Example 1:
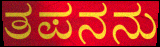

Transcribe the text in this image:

ತಪನನು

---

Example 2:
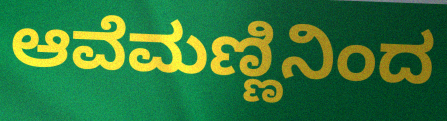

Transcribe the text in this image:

ಆವೆಮಣ್ಣಿನಿಂದ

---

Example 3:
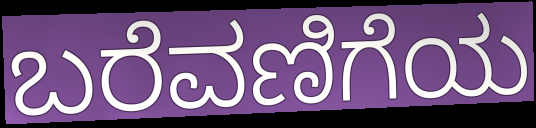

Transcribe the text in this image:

ಬರೆವಣಿಗೆಯ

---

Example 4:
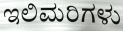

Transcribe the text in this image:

ಇಲಿಮರಿಗಳು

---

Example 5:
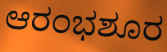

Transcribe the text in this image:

ಆರಂಭಶೂರ